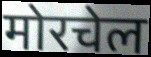
मोरचेल